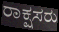
ರಾಕ್ಷಸರು